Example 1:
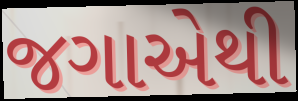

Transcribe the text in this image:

જગાએથી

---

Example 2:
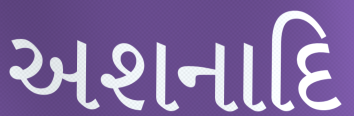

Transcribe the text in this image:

અશનાદિ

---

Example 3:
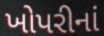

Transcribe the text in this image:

ખોપરીનાં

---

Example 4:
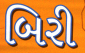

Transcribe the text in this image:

બિરી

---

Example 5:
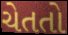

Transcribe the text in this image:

ચેતતો